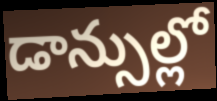
డాన్సుల్లో